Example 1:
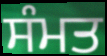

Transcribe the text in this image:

ਸੰਮਤ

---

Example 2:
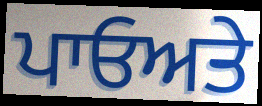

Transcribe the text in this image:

ਪਾਓਅਤੇ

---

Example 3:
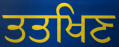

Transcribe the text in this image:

ਤਤਖਿਣ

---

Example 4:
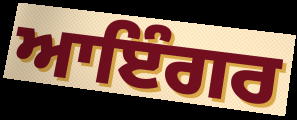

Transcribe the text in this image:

ਆਇੰਗਰ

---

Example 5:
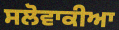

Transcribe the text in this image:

ਸਲੋਵਾਕੀਆ